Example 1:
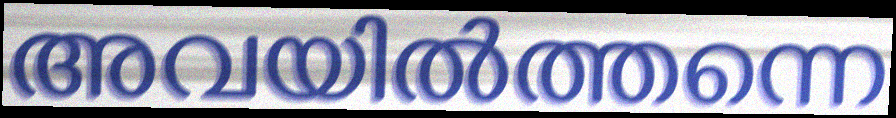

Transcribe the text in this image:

അവയിൽത്തന്നെ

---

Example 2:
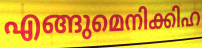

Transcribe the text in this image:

എങ്ങുമെനിക്കിഹ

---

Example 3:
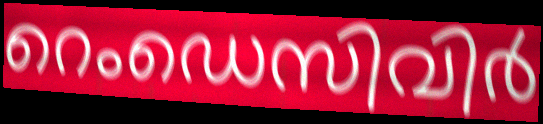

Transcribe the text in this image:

റെംഡെസിവിർ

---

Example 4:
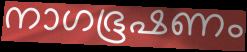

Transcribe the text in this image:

നാഗഭൂഷണം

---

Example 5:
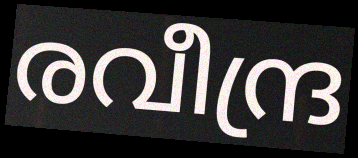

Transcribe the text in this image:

രവീന്ദ്ര